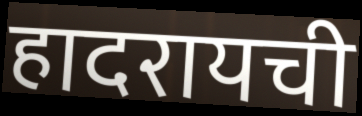
हादरायची